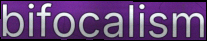
bifocalism